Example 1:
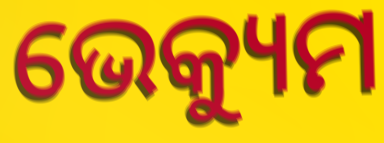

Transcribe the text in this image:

ଭେକ୍ୟୁମ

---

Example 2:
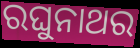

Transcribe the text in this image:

ରଘୁନାଥର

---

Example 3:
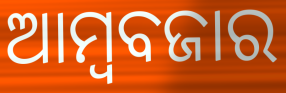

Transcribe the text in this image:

ଆମ୍ୱବଜାର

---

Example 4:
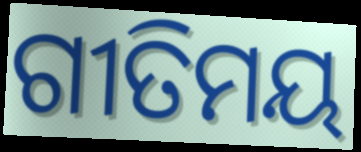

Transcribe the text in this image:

ଗୀତିମୟ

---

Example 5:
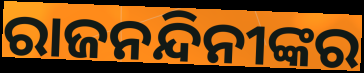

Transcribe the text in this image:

ରାଜନନ୍ଦିନୀଙ୍କର